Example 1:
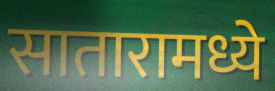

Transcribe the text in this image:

सातारामध्ये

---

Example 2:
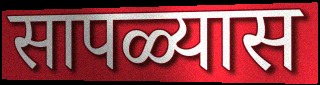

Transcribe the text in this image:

सापळ्यास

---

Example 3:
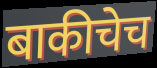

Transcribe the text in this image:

बाकीचेच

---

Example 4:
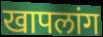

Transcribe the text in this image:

खापलांग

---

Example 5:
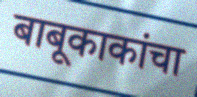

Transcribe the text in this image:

बाबूकाकांचा